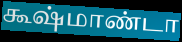
கூஷ்மாண்டா